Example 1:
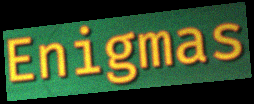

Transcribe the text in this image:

Enigmas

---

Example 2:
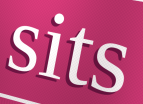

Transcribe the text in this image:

sits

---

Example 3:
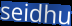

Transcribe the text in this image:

seidhu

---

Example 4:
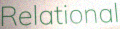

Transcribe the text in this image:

Relational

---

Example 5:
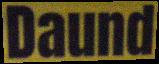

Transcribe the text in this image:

Daund